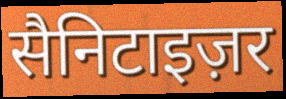
सैनिटाइज़र